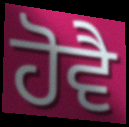
ਹੋਵੈ